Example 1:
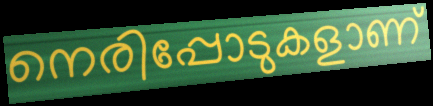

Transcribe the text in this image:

നെരിപ്പോടുകളാണ്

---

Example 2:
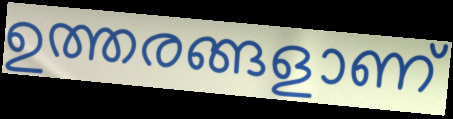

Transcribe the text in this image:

ഉത്തരങ്ങളാണ്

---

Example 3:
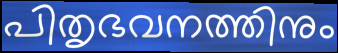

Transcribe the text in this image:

പിതൃഭവനത്തിനും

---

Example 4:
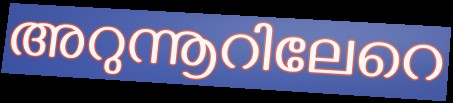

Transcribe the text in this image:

അറുന്നൂറിലേറെ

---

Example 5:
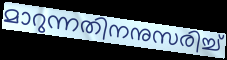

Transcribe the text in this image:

മാറുന്നതിനനുസരിച്ച്